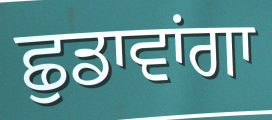
ਛੁਡਾਵਾਂਗਾ